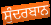
ਸੁੰਦਰਬਾਨ